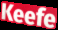
Keefe